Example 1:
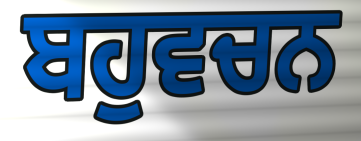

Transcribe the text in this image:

ਬਹੁਵਚਨ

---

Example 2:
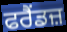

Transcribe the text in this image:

ਫਰੈਂਡਜ਼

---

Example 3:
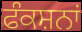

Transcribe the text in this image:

ਫੰਕਸ਼ਨਾਂ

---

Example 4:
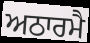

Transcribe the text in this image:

ਅਠਾਰਮੈ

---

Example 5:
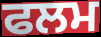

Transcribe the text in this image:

ਫਲਮ